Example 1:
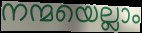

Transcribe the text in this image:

നന്മയെല്ലാം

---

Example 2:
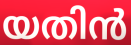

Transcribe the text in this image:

യതിൻ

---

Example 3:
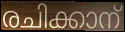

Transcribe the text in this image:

രചിക്കാന്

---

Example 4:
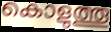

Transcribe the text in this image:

കൊളുത്തൂ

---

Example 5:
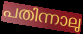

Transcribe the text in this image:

പതിന്നാലു